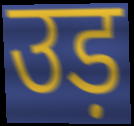
उड़